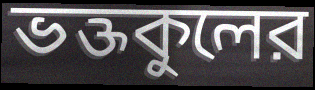
ভক্তকুলের